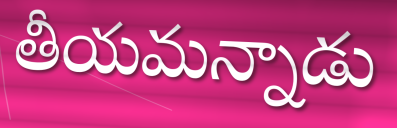
తీయమన్నాడు